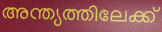
അന്ത്യത്തിലേക്ക്